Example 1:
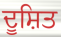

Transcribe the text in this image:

ਦੂਸ਼ਿਤ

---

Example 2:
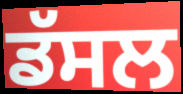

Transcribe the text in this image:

ਡੱਸਲ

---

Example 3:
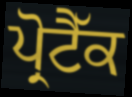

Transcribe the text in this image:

ਪ੍ਰੋਟੈੱਕ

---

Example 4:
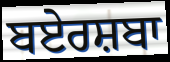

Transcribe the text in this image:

ਬਏਰਸ਼ਬਾ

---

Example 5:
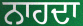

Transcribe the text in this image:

ਨਾਹਦਾ